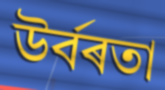
উৰ্বৰতা